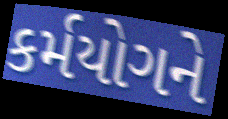
કર્મયોગને